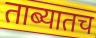
ताब्यातच